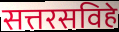
सत्तरसविहे